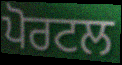
ਪੋਰਟਲ